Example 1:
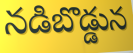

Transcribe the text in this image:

నడిబొడ్డున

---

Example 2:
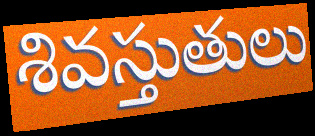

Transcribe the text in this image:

శివస్తుతులు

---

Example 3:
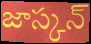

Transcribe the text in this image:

జాస్కన్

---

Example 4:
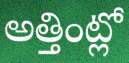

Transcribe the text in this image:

అత్తింట్లో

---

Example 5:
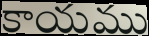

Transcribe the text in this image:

కాయము